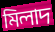
মিলাদ